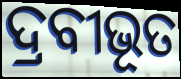
ଦ୍ରବୀଭୂତ